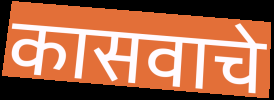
कासवाचे